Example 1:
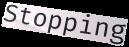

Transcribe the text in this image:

Stopping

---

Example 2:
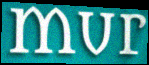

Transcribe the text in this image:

mur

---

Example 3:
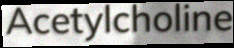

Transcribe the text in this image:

Acetylcholine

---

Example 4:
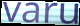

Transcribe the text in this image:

varu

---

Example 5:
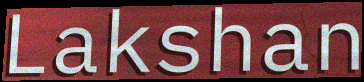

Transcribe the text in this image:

Lakshan